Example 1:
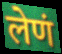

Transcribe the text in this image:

लेणं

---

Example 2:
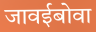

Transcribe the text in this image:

जावईबोवा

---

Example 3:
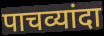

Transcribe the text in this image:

पाचव्यांदा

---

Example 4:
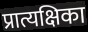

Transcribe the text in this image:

प्रात्यक्षिका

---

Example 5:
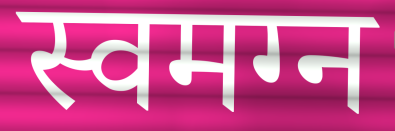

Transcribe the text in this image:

स्वमग्न